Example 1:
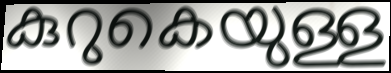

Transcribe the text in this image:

കുറുകെയുള്ള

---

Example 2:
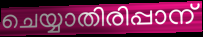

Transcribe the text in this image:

ചെയ്യാതിരിപ്പാന്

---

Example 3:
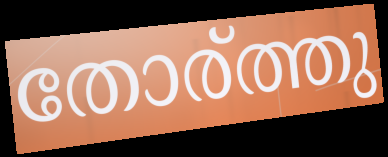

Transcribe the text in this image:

തോര്ത്തു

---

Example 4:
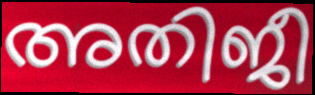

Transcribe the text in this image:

അതിജീ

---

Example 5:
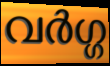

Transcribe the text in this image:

വർഗ്ഗ